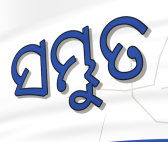
ସମ୍ଭୁତ